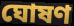
ঘোষণ